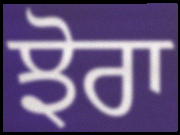
ਝੋਰਾ